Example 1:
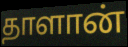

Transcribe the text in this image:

தாளான்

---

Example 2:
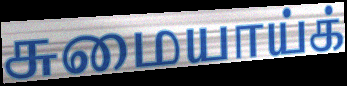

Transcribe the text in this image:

சுமையாய்க்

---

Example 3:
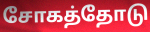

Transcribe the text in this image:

சோகத்தோடு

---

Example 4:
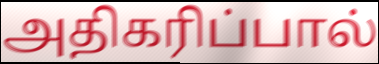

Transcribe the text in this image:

அதிகரிப்பால்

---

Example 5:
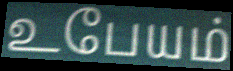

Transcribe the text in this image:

உபேயம்